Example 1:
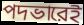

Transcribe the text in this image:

পদভারেই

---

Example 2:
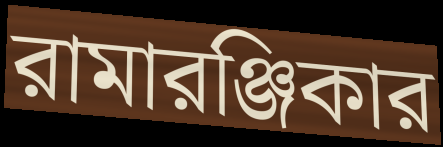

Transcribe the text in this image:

রামারঞ্জিকার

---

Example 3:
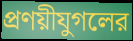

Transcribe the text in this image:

প্রণয়ীযুগলের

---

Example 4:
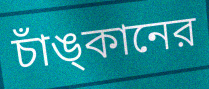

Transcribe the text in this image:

চাঁঙ্‌কানের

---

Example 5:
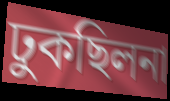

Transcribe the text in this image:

ঢুকছিলনা